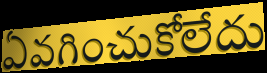
ఏవగించుకోలేదు